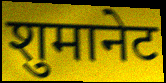
शुमानेट